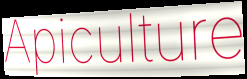
Apiculture